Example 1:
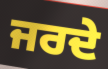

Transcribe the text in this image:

ਜਰਦੇ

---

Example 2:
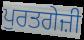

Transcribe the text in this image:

ਪੁਰਤਗੇਜ਼ੀ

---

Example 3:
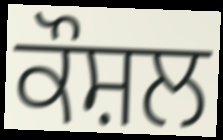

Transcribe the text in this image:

ਕੌਸ਼ਲ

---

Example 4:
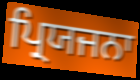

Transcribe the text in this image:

ਪ੍ਰਿਯਜਨਾ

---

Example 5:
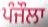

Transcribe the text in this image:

ਪੰਜੌਲਾ